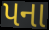
પના